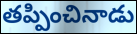
తప్పించినాడు